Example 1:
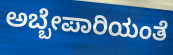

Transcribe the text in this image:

ಅಬ್ಬೇಪಾರಿಯಂತೆ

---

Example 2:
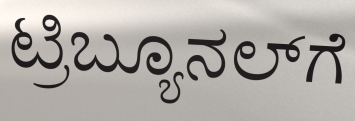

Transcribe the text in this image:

ಟ್ರಿಬ್ಯೂನಲ್‌ಗೆ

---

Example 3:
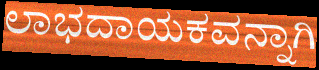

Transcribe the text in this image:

ಲಾಭದಾಯಕವನ್ನಾಗಿ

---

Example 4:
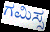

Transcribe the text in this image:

ಗಮಿಸ್ಸ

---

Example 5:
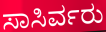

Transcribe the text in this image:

ಸಾಸಿರ್ವರು